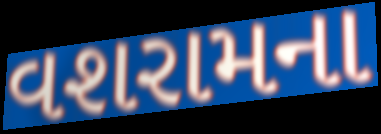
વશરામના